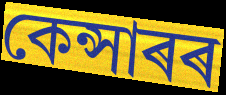
কেন্সাৰৰ